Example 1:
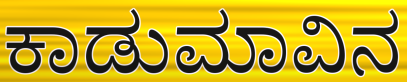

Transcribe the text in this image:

ಕಾಡುಮಾವಿನ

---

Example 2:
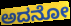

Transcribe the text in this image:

ಅದನೋ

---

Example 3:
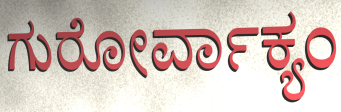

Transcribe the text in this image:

ಗುರೋರ್ವಾಕ್ಯಂ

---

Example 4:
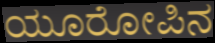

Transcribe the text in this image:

ಯೂರೋಪಿನ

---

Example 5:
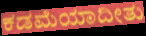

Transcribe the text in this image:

ಕಡಮೆಯಾದೀತು